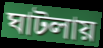
ঘাটলায়